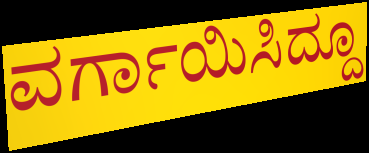
ವರ್ಗಾಯಿಸಿದ್ದೂ